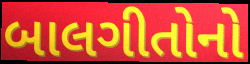
બાલગીતોનો